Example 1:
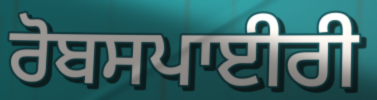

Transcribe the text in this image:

ਰੋਬਸਪਾਈਰੀ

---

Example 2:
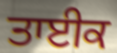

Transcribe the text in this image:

ਤਾਈਕ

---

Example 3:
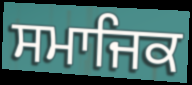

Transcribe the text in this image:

ਸਮਾਜਿਕ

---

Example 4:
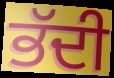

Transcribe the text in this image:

ਭੱਦੀ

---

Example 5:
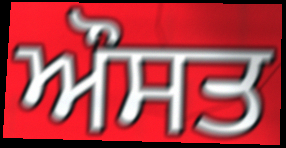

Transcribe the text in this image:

ਔਸਤ